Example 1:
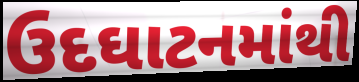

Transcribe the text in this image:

ઉદઘાટનમાંથી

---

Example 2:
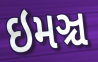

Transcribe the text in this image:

ઇમઞ્ચ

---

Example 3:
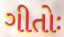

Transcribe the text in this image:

ગીતોઃ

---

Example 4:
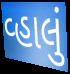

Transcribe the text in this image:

વ્હાલું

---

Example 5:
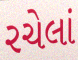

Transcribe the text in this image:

રચેલાં